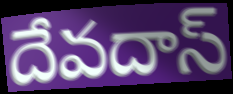
దేవదాస్